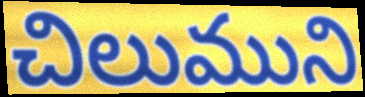
చిలుముని